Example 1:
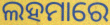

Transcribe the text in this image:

ଲହମାରେ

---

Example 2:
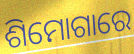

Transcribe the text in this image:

ଶିମୋଗାରେ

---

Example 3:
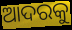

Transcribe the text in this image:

ଆଦରକୁ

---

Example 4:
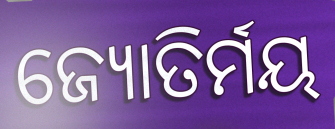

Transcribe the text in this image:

ଜ୍ୟୋତିର୍ମୟ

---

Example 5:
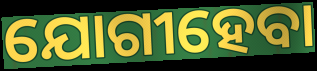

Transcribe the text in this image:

ଯୋଗୀହେବା